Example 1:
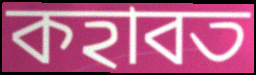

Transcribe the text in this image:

কহাবত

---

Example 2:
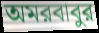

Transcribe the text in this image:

অমরবাবুর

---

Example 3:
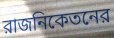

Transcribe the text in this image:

রাজনিকেতনের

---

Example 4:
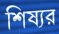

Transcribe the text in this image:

শিষ্যর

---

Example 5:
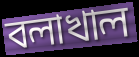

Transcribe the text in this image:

বলাখাল